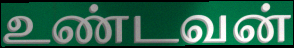
உண்டவன்